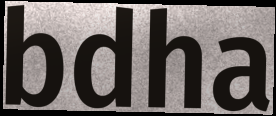
bdha